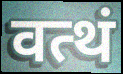
वत्थं